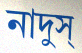
নাদুস্